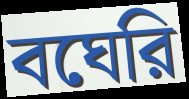
বঘেরি